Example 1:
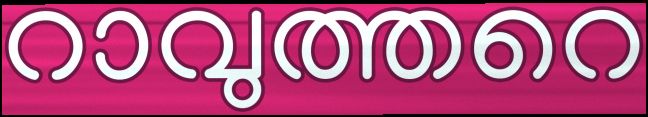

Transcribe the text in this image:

റാവുത്തറെ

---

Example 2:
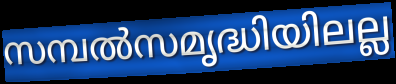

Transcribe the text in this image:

സമ്പൽസമൃദ്ധിയിലല്ല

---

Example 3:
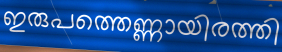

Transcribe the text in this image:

ഇരുപത്തെണ്ണായിരത്തി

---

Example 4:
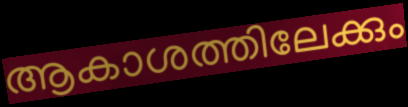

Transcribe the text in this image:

ആകാശത്തിലേക്കും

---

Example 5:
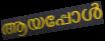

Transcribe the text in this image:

ആയപ്പോൾ